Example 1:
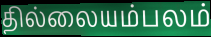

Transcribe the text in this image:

தில்லையம்பலம்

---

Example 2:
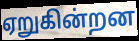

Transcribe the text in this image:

ஏறுகின்றன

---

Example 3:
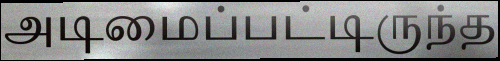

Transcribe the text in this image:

அடிமைப்பட்டிருந்த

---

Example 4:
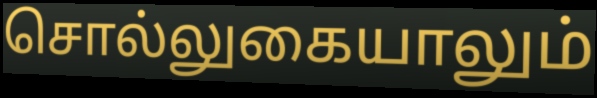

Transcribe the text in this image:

சொல்லுகையாலும்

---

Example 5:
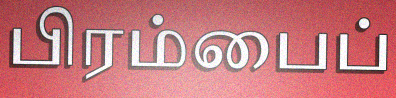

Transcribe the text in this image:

பிரம்பைப்